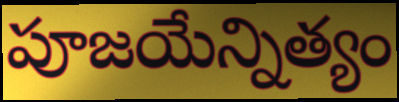
పూజయేన్నిత్యం